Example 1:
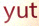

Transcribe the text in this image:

yut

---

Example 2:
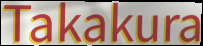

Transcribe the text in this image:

Takakura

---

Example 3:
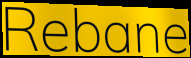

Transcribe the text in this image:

Rebane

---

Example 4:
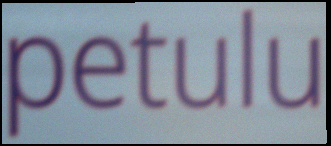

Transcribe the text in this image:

petulu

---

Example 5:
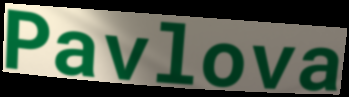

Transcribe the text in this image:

Pavlova